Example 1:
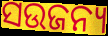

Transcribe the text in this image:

ସଉଜନ୍ୟ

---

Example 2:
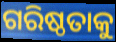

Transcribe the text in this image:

ଗରିଷ୍ଠତାକୁ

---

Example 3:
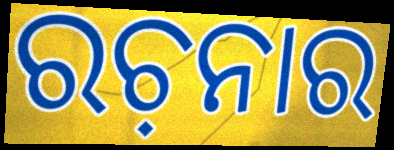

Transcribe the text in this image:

ରଚ଼ନାର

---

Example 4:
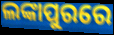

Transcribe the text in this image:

ଲଙ୍କାପୁରରେ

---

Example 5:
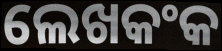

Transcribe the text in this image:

ଲେଖକଂକ